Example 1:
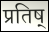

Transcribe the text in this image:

प्रतिष्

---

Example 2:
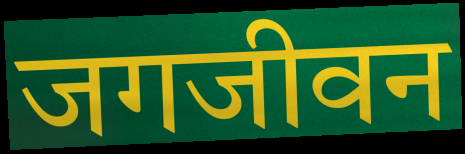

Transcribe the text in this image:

जगजीवन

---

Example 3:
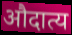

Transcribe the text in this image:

औदात्य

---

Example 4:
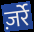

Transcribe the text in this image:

ज़र्रे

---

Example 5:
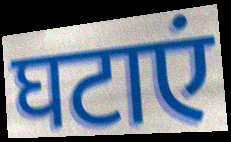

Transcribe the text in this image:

घटाएं